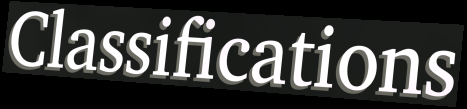
Classifications